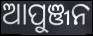
ଆପୁଞ୍ଜନ